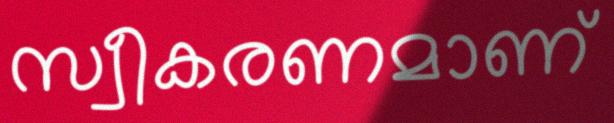
സ്വീകരണമാണ്